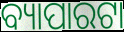
ବ୍ୟାପାରଟା